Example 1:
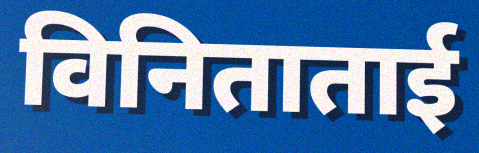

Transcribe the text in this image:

विनिताताई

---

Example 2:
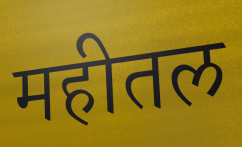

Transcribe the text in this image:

महीतल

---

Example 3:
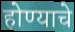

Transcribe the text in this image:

होण्याचे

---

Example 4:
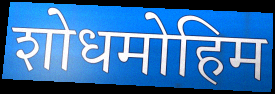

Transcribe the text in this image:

शोधमोहिम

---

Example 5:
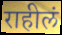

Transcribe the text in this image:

राहीलं